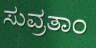
ಸುವ್ರತಾಂ